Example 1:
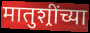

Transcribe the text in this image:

मातुश्रींच्या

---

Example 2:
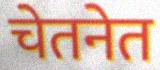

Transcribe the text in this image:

चेतनेत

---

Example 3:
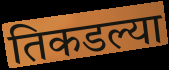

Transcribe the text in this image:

तिकडल्या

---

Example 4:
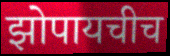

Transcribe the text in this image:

झोपायचीच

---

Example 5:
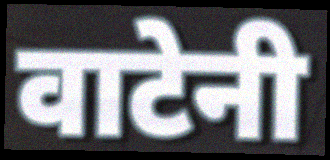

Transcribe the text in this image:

वाटेनी